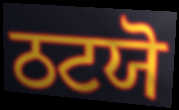
ਠਟਯੋ